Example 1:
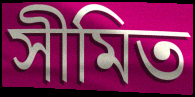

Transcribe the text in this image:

সীমিত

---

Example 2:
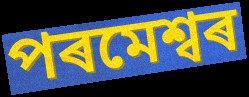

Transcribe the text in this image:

পৰমেশ্বৰ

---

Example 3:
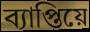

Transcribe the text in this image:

ব্য়াপ্তিয়ে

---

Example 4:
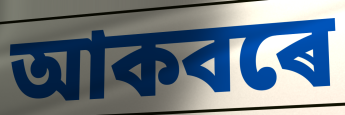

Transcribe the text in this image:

আকবৰে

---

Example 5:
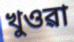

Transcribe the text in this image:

খুওৱা